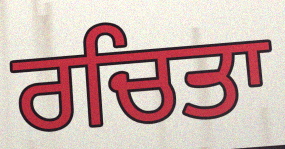
ਰਚਿਤਾ